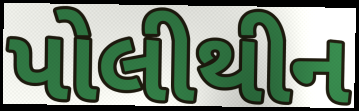
પોલીથીન